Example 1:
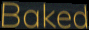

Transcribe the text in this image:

Baked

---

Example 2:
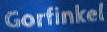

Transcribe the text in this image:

Gorfinkel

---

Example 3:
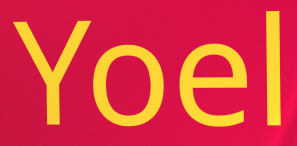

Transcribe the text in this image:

Yoel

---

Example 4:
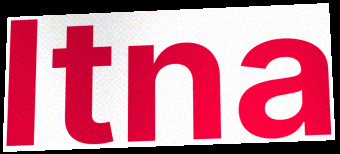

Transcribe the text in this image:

Itna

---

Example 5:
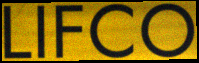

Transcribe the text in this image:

LIFCO